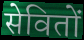
सेवितों